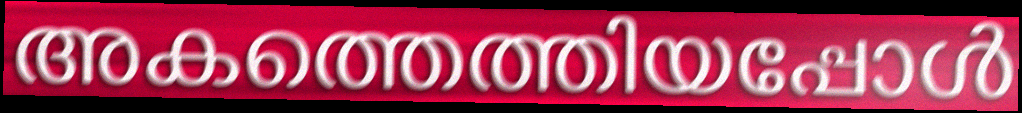
അകത്തെത്തിയപ്പോൾ